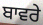
ਬਾਵਰੇ